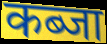
कब्जा